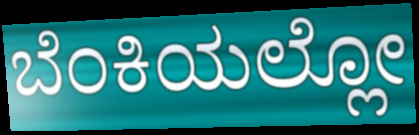
ಬೆಂಕಿಯಲ್ಲೋ